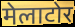
मेलाटोर